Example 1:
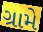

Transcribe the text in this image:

ગ્રામે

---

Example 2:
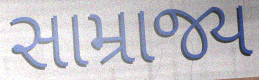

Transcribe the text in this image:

સામ્રાજ્ય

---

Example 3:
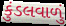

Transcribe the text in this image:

કુંડલવાળું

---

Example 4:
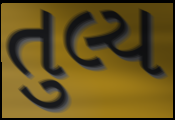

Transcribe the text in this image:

તુલ્ય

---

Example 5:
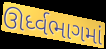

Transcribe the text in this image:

ઊર્ધ્વભાગમાં